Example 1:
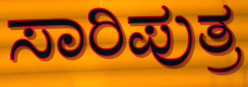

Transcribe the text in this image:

ಸಾರಿಪುತ್ರ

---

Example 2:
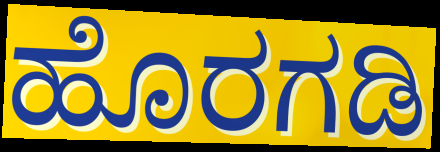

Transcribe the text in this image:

ಹೊರಗಡಿ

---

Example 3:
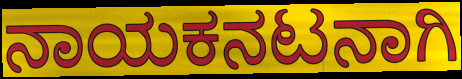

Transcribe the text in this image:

ನಾಯಕನಟನಾಗಿ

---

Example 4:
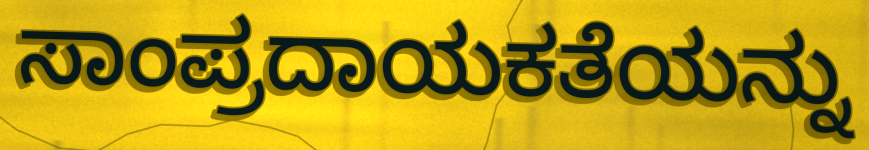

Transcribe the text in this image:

ಸಾಂಪ್ರದಾಯಕತೆಯನ್ನು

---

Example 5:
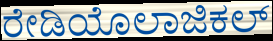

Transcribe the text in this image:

ರೇಡಿಯೊಲಾಜಿಕಲ್